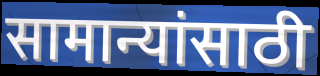
सामान्यांसाठी